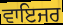
ਵਾਇਜਰ